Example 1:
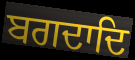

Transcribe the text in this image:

ਬਗਦਾਦਿ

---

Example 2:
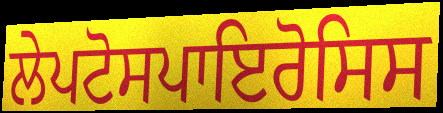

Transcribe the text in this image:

ਲੇਪਟੋਸਪਾਇਰੋਸਿਸ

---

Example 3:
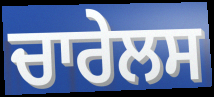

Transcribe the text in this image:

ਚਾਰੇਲਸ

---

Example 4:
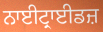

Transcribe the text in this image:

ਨਾਈਟ੍ਰਾਈਡਜ਼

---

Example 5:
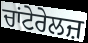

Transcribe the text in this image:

ਚਾਂਟੇਰੇਲਜ਼